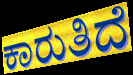
ಕಾರುತಿದೆ